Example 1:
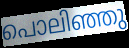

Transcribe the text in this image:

പൊലിഞ്ഞു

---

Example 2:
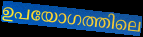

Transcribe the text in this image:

ഉപയോഗത്തിലെ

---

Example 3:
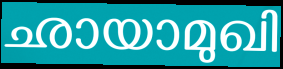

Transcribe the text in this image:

ഛായാമുഖി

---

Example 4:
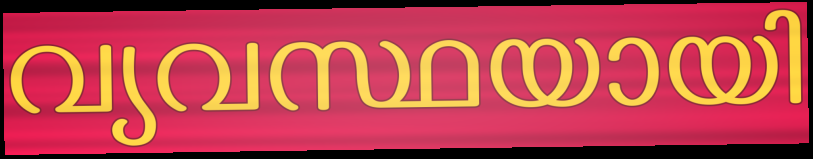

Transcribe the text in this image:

വ്യവസ്ഥയായി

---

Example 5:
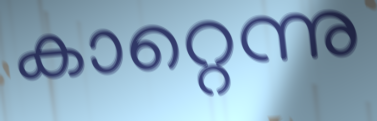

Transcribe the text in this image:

കാറ്റെന്നു